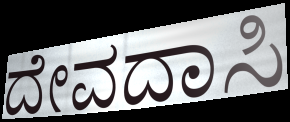
ದೇವದಾಸಿ